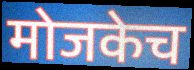
मोजकेच